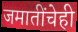
जमातींचेही